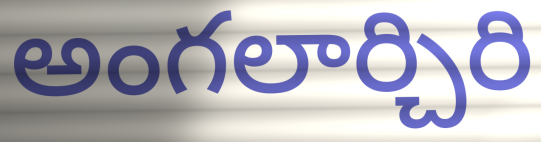
అంగలార్చిరి